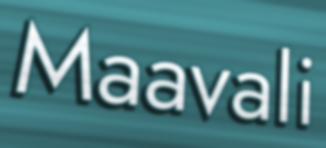
Maavali